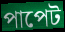
পাপেট